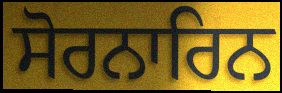
ਸੋਰਨਾਰਿਨ